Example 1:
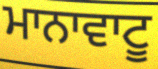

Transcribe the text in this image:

ਮਾਨਾਵਾਟੂ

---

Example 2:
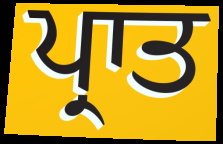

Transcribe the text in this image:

ਪ੍ਰਾਤ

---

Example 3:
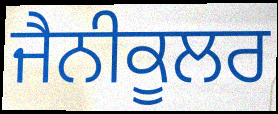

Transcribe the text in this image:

ਜੈਨੀਕੂਲਰ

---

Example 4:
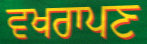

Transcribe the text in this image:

ਵਖਰਾਪਣ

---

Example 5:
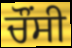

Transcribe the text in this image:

ਚੌਂਸੀ